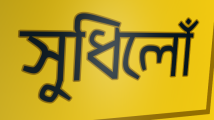
সুধিলোঁ